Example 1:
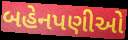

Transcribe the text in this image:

બહેનપણીઓ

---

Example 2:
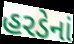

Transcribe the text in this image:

હરડેનાં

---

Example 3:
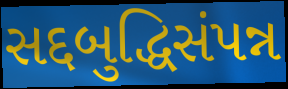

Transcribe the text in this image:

સદ્દબુદ્ધિસંપન્ન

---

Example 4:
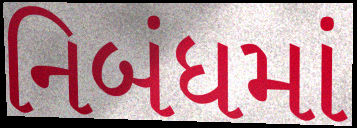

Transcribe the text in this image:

નિબંધમાં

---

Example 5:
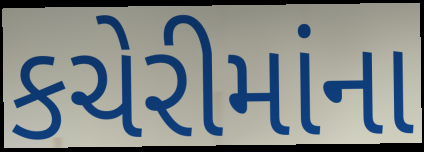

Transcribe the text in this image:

કચેરીમાંના